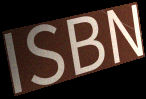
ISBN